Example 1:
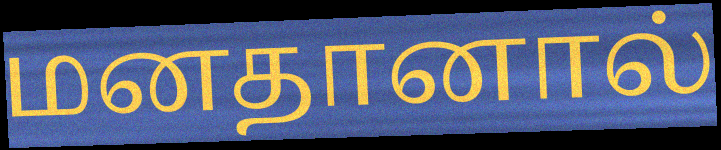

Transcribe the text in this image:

மனதானால்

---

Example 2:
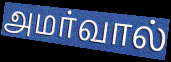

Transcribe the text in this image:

அமர்வால்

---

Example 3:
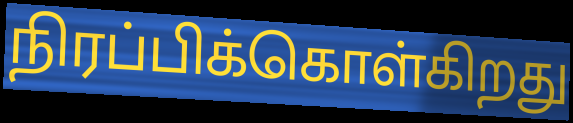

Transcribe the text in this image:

நிரப்பிக்கொள்கிறது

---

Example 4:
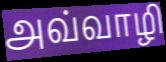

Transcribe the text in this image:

அவ்வாழி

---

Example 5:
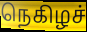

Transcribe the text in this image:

நெகிழச்